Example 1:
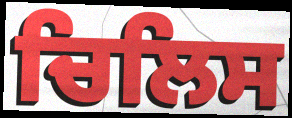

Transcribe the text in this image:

ਚਿਲਿਸ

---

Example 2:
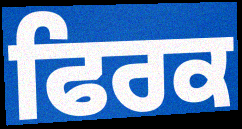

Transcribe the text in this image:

ਫਿਰਕ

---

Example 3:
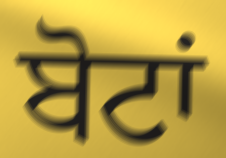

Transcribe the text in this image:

ਬੋਟਾਂ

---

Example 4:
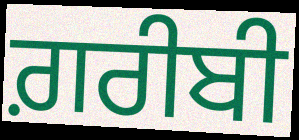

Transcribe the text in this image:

ਗ਼ਰੀਬੀ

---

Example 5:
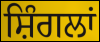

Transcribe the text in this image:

ਸ਼ਿੰਗਲਾਂ